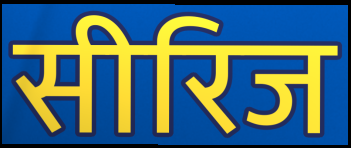
सीरिज